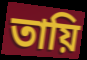
তায়ি